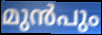
മുൻപും